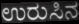
ಉರುಸಿನ